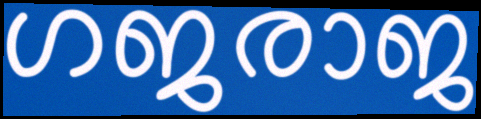
ഗജരാജ